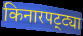
किनारपट्ट्या